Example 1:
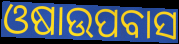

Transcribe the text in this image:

ଓଷାଉପବାସ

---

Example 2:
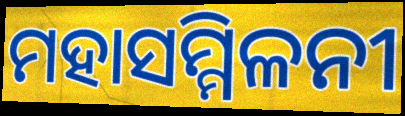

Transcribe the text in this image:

ମହାସମ୍ମିଳନୀ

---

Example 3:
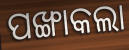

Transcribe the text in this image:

ପଙ୍ଖାକଲା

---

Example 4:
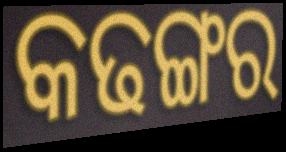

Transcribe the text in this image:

କଢଙ୍ଗର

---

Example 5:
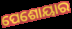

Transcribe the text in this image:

ପେଶୋୟାର